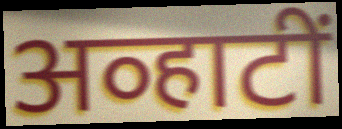
अव्हाटीं